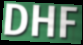
DHF